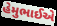
હેમુભાઈએ